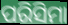
ପରିସିମା